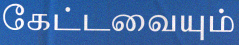
கேட்டவையும்